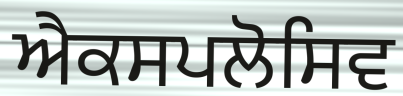
ਐਕਸਪਲੋਸਿਵ